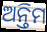
ଅନ୍ତିମ